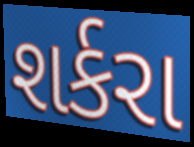
શર્કરા